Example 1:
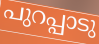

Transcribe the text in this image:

പുറപ്പാടു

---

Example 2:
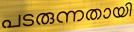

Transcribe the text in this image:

പടരുന്നതായി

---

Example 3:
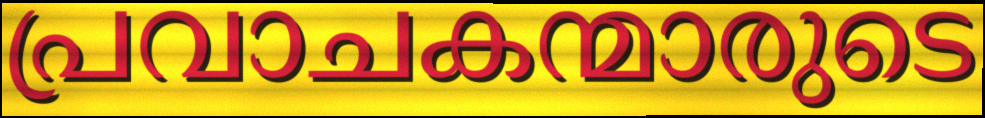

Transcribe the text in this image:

പ്രവാചകന്മാരുടെ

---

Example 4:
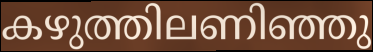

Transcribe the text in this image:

കഴുത്തിലണിഞ്ഞു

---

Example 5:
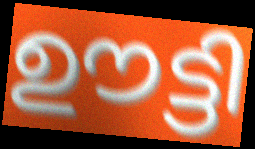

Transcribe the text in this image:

ഊട്ടി